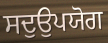
ਸਦੁਉਪਯੋਗ